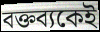
বক্তব্যকেই